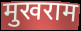
मुखराम